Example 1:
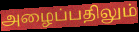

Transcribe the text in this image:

அழைப்பதிலும்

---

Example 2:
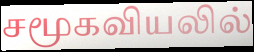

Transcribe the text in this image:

சமூகவியலில்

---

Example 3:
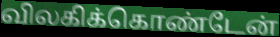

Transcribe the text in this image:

விலகிக்கொண்டேன்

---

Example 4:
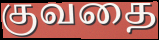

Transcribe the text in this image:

குவதை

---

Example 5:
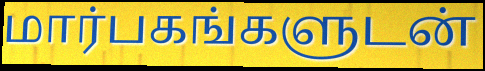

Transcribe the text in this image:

மார்பகங்களுடன்